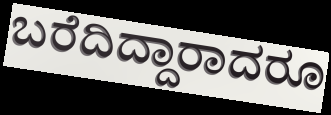
ಬರೆದಿದ್ದಾರಾದರೂ